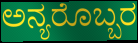
ಅನ್ಯರೊಬ್ಬರ